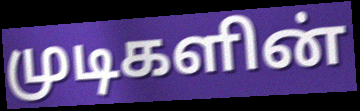
முடிகளின்